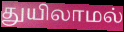
துயிலாமல்